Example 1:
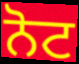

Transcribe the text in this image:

ਨੋਟ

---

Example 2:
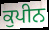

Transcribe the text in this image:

ਕੁਪੀਨ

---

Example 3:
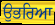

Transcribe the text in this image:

ਉਭਰਿਆ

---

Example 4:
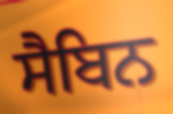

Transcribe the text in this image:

ਸੈਬਿਨ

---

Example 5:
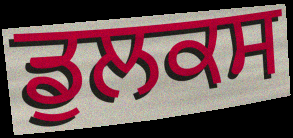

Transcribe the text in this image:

ਡੁਲਕਸ